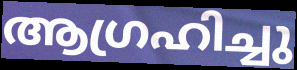
ആഗ്രഹിച്ചു